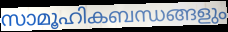
സാമൂഹികബന്ധങ്ങളും